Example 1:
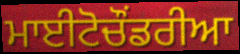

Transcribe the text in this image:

ਮਾਈਟੋਚੌਂਡਰੀਆ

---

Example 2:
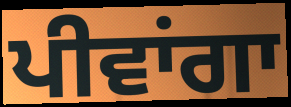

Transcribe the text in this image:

ਪੀਵਾਂਗਾ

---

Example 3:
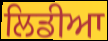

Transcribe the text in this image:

ਲਿਡੀਆ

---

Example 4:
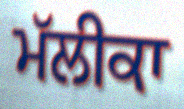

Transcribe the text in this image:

ਮੱਲੀਕਾ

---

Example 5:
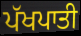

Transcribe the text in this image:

ਪੱਖਪਾਤੀ